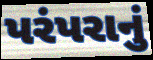
પરંપરાનું